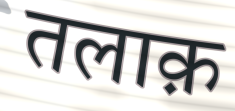
तलाक़